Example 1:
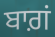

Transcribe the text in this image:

ਬਾਗ਼ਂ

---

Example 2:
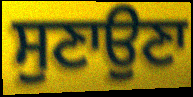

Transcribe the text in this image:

ਸੁਣਾਉਣਾ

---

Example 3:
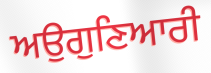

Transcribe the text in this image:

ਅਉਗੁਣਿਆਰੀ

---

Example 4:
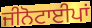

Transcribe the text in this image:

ਜੀਨੋਟਾਈਪਾਂ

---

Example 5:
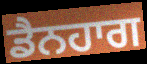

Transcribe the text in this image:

ਡੈਨਹਾਗ